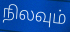
நிலவும்